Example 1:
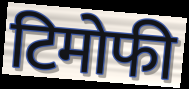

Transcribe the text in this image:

टिमोफी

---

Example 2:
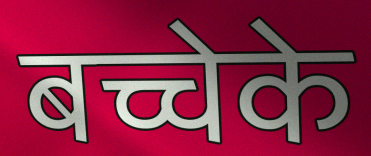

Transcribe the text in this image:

बच्चेके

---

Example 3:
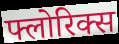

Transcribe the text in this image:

फ्लोरिक्स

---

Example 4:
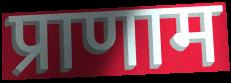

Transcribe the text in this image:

प्राणाम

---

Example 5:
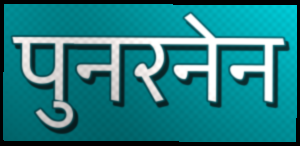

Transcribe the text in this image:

पुनरनेन